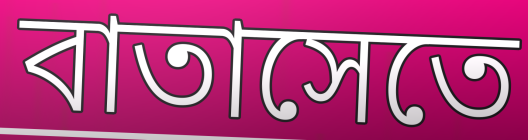
বাতাসেতে